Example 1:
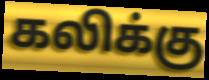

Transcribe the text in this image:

கலிக்கு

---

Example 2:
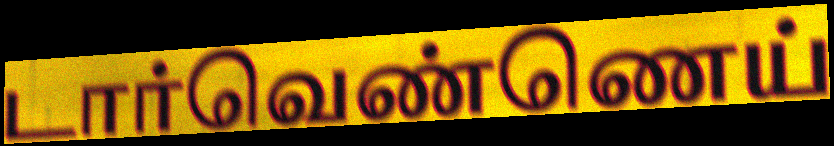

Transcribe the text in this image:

டார்வெண்ணெய்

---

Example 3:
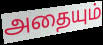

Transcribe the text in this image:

அதையும்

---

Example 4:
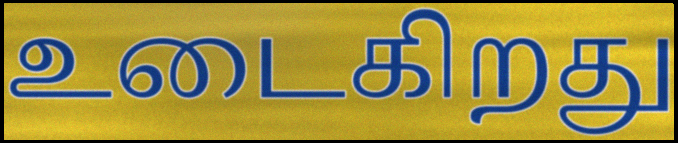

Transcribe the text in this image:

உடைகிறது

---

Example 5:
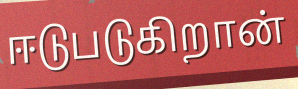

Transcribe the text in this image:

ஈடுபடுகிறான்